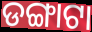
ଡଙ୍ଗାଟା